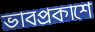
ভাবপ্রকাশে